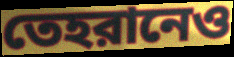
তেহরানেও